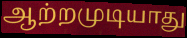
ஆற்றமுடியாது